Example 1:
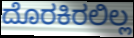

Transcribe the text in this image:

ದೊರಕಿರಲಿಲ್ಲ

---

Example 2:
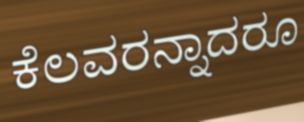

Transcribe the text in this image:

ಕೆಲವರನ್ನಾದರೂ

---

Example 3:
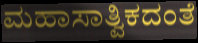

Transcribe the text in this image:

ಮಹಾಸಾತ್ವಿಕದಂತೆ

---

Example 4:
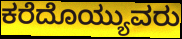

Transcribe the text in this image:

ಕರೆದೊಯ್ಯುವರು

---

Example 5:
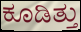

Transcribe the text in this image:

ಕೂಡಿತ್ತು